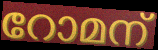
റോമന്